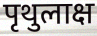
पृथुलाक्ष